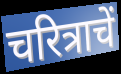
चरित्राचें